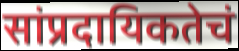
सांप्रदायिकतेचं